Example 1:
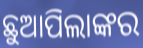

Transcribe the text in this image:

ଛୁଆପିଲାଙ୍କର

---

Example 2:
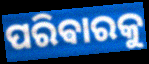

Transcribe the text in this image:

ପରିଵାରକୁ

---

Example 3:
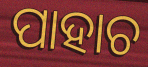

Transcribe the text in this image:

ପାହାଚ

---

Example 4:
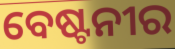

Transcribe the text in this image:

ବେଷ୍ଟନୀର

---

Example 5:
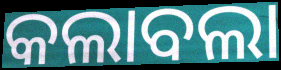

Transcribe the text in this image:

କଲାବଲା